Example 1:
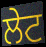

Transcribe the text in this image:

ਲੇਟ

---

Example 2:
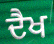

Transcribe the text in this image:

ਦੈਖ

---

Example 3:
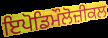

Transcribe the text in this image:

ਇਪੋਡਿਮੌਲੋਜ਼ੀਕਲ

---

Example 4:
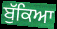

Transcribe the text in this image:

ਬੁੱਕਿਆ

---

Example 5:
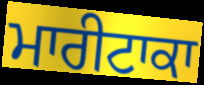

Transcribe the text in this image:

ਮਾਰੀਟਾਕਾ